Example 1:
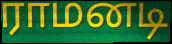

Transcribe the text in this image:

ராமனடி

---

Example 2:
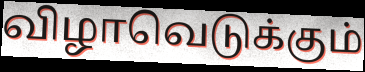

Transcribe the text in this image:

விழாவெடுக்கும்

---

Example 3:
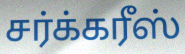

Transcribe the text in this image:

சர்க்கரீஸ்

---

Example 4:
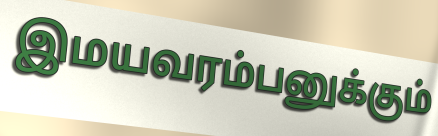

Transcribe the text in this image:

இமயவரம்பனுக்கும்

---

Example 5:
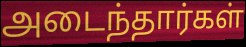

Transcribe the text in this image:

அடைந்தார்கள்